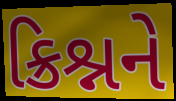
ક્રિશ્નને